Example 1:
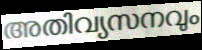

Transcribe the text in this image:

അതിവ്യസനവും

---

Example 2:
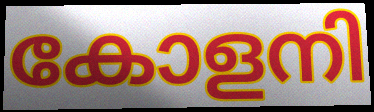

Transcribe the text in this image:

കോളനി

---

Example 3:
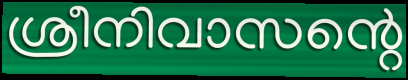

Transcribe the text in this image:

ശ്രീനിവാസന്റെ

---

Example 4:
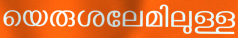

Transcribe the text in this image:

യെരുശലേമിലുള്ള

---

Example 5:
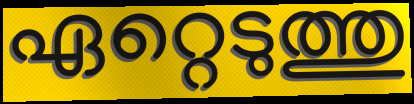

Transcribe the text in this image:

ഏറ്റെടുത്തു